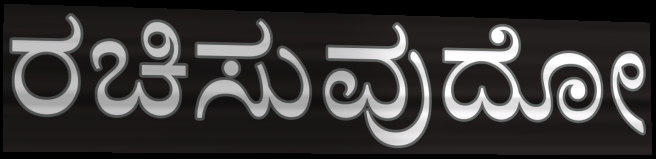
ರಚಿಸುವುದೋ